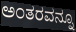
ಅಂತರವನ್ನೂ